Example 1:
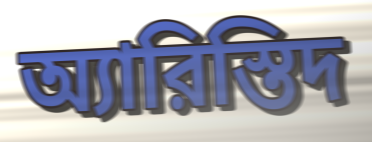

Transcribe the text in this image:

অ্যারিস্তিদ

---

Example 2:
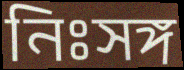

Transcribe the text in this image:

নিঃসঙ্গ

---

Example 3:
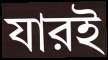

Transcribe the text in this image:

যারই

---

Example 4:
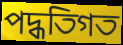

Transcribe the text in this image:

পদ্ধতিগত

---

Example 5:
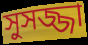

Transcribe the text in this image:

সুসজ্জা